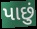
પાછું